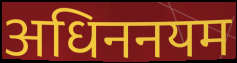
अधिननयम